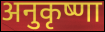
अनुकृष्णा